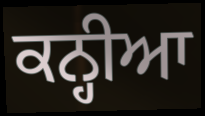
ਕਨ੍ਹੀਆ